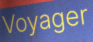
Voyager